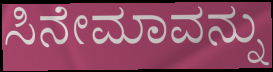
ಸಿನೇಮಾವನ್ನು